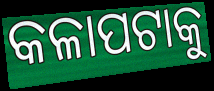
କଳାପଟାକୁ